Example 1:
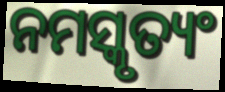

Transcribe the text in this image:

ନମସ୍କୃତ୍ୟଂ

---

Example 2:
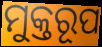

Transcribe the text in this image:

ମୁକ୍ତରୂପ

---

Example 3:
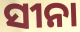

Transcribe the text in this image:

ସୀନା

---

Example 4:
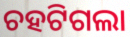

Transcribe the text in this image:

ଚହଟିଗଲା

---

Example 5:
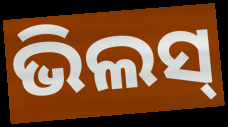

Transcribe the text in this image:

ଭିଲସ୍